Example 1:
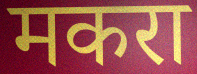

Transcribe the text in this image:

मकरा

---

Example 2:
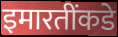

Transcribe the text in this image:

इमारतींकडे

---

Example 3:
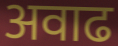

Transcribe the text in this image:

अवाढ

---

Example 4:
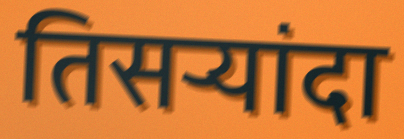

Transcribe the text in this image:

तिसऱ्यांदा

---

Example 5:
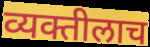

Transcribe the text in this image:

व्यक्तीलाच